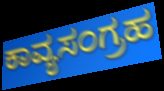
ಕಾವ್ಯಸಂಗ್ರಹ